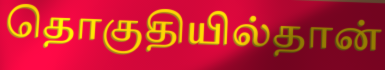
தொகுதியில்தான்